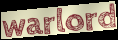
warlord